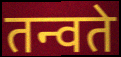
तन्वते